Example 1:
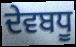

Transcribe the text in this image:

ਦੇਵਬਧੂ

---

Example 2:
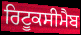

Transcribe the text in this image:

ਰਿਟੂਕਸੀਮੈਬ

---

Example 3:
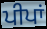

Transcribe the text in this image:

ਪੀਪਾਂ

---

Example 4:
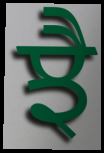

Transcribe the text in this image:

ਝੈ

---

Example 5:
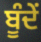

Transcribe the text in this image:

ਬੂੰਦੇਂ